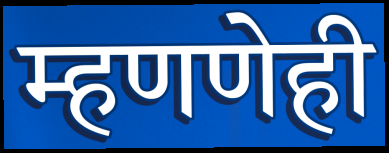
म्हणणेही